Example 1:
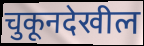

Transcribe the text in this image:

चुकूनदेखील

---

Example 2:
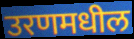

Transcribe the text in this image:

उरणमधील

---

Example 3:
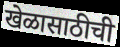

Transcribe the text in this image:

खेळासाठीची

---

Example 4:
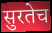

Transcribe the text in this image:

सुरतेच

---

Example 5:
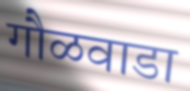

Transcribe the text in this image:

गौळवाडा